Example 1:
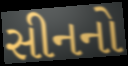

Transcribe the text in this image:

સીનનો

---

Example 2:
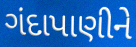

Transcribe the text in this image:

ગંદાપાણીને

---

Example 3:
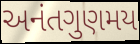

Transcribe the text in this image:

અનંતગુણમય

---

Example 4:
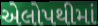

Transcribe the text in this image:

એલોપથીમાં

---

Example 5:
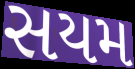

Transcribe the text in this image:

સયમ